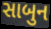
સાબુન